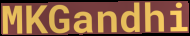
MKGandhi